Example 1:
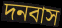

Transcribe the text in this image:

দনবাস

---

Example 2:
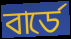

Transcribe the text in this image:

বার্ডে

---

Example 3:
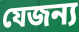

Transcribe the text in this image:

যেজন্য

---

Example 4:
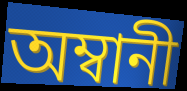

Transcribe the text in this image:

অম্বানী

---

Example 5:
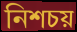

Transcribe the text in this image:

নিশচয়